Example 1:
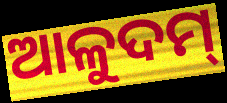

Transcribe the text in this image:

ଆଳୁଦମ୍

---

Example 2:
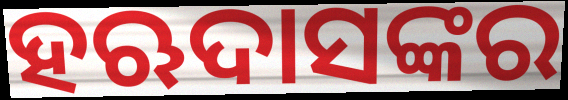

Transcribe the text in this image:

ହଋଦାସଙ୍କର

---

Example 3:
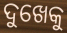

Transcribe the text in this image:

ଦୁଖେକୁ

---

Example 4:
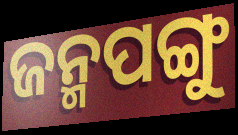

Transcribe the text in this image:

ଜନ୍ମପଙ୍ଗୁ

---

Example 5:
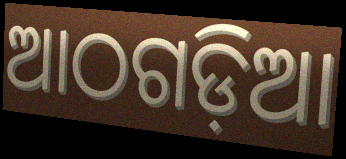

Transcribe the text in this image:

ଆଠଗଡ଼ିଆ